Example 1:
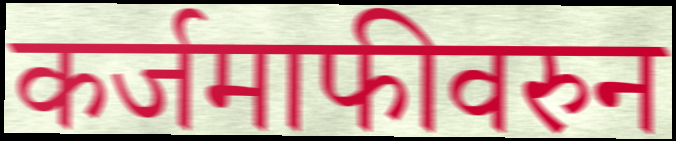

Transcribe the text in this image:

कर्जमाफीवरुन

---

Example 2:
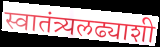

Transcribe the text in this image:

स्वातंत्र्यलढ्याशी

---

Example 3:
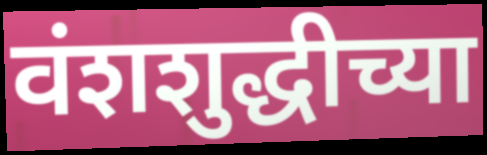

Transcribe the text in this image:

वंशशुद्धीच्या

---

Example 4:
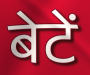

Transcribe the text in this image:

बेटें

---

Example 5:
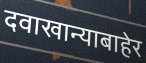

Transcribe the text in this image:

दवाखान्याबाहेर